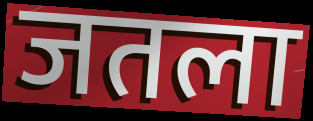
जतला